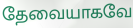
தேவையாகவே